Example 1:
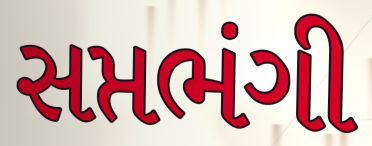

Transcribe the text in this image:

સપ્તભંગી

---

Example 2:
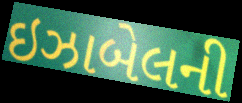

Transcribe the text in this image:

ઇઝાબેલની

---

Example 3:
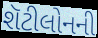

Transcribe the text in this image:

શૅટીલોનની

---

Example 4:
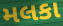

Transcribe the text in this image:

મલકા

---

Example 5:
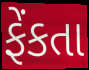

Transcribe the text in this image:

ફેંકતા